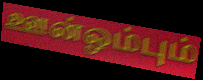
ஊன்ஓம்பும்